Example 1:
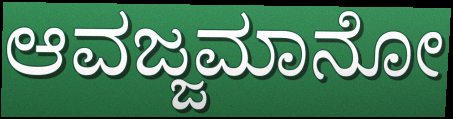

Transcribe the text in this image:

ಆವಜ್ಜಮಾನೋ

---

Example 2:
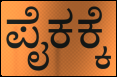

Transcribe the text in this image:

ಪೈಕಕ್ಕೆ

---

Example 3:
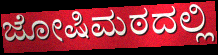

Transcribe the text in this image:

ಜೋಷಿಮಠದಲ್ಲಿ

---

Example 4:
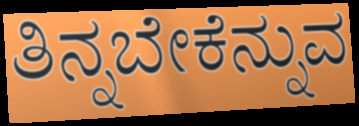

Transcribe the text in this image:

ತಿನ್ನಬೇಕೆನ್ನುವ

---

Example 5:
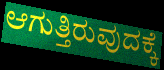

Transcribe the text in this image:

ಆಗುತ್ತಿರುವುದಕ್ಕೆ